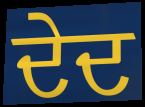
ਦੇਦ